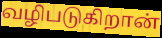
வழிபடுகிறான்